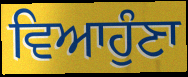
ਵਿਆਹੁੰਣਾ